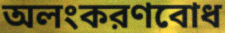
অলংকরণবোধ